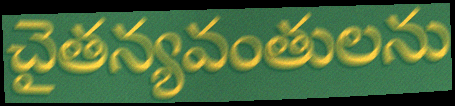
చైతన్యవంతులను